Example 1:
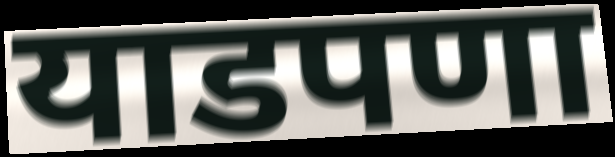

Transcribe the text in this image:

याडपणा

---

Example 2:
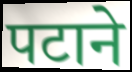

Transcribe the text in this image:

पटाने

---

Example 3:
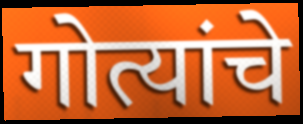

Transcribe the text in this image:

गोत्यांचे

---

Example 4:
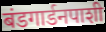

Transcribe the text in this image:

बंडगार्डनपाशी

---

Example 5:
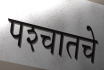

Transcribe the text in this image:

पश्चातचे